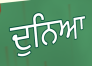
ਦੁਨਿਆ